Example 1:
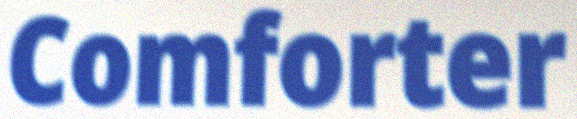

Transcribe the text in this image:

Comforter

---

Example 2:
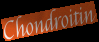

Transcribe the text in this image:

Chondroitin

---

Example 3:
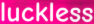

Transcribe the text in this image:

luckless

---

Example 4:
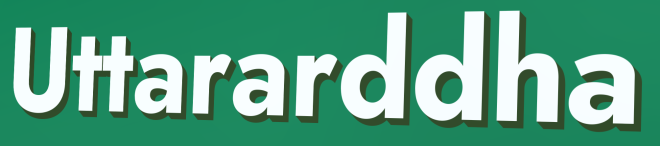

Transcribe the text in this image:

Uttararddha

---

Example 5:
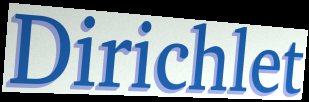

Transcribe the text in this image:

Dirichlet